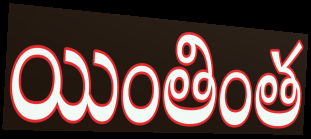
యింతింత